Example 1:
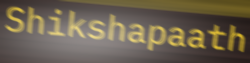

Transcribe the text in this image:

Shikshapaath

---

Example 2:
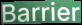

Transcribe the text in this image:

Barrier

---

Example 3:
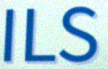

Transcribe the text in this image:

ILS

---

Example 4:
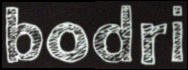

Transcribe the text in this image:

bodri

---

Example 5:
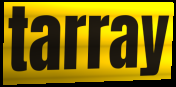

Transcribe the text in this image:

tarray